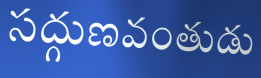
సద్గుణవంతుడు